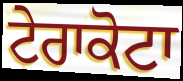
ਟੇਰਾਕੋਟਾ